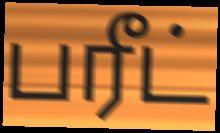
பரீட்